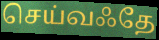
செய்வஃதே